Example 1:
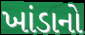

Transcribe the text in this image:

ખાંડાનો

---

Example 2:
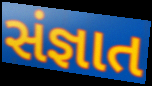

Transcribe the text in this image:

સંજ્ઞાત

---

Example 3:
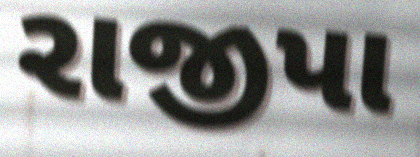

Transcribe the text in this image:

રાજીપા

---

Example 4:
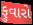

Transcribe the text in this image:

ફુવારો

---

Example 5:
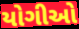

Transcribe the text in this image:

યોગીઓ